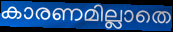
കാരണമില്ലാതെ